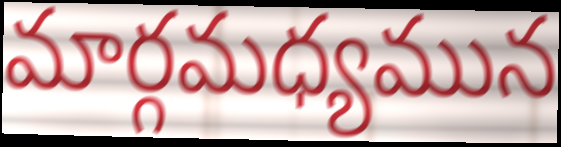
మార్గమధ్యమున